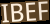
IBEF